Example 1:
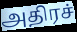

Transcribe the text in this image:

அதிரச்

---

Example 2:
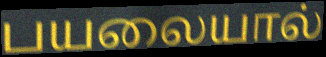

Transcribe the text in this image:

பயலையால்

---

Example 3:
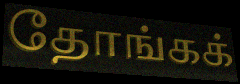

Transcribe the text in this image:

தோங்கக்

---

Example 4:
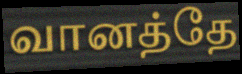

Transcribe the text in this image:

வானத்தே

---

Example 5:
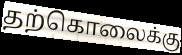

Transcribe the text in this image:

தற்கொலைக்கு